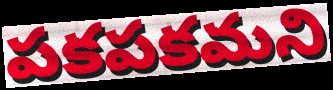
పకపకమని